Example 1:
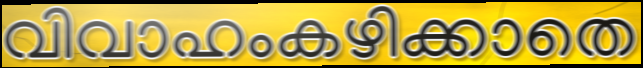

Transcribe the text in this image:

വിവാഹംകഴിക്കാതെ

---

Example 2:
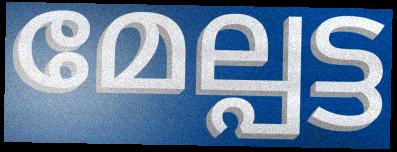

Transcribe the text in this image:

മേല്പട്ട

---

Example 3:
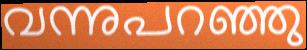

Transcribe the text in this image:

വന്നുപറഞ്ഞു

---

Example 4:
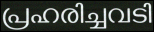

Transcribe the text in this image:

പ്രഹരിച്ചവടി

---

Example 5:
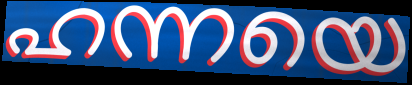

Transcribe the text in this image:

ഹന്നയെ